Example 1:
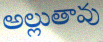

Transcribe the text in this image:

అల్లుతావు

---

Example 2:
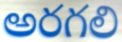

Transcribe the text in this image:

అరగలి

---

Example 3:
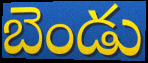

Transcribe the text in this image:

బెండు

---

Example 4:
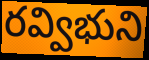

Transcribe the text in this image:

రవ్విభుని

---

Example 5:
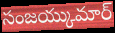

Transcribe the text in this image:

సంజయ్కుమార్